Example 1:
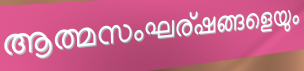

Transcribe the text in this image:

ആത്മസംഘര്ഷങ്ങളെയും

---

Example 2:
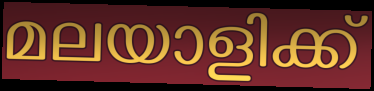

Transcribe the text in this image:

മലയാളിക്ക്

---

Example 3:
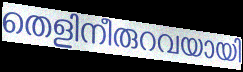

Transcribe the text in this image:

തെളിനീരുറവയായി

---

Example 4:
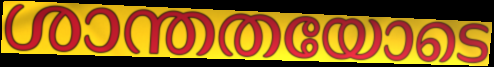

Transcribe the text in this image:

ശാന്തതയോടെ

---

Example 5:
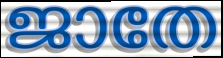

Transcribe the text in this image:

ജാതേ